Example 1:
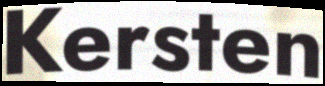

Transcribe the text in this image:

Kersten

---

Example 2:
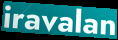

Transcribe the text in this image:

iravalan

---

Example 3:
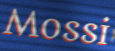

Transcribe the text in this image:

Mossi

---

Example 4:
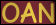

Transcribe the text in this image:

OAN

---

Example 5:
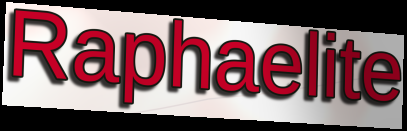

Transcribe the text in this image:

Raphaelite